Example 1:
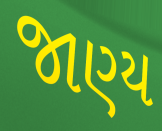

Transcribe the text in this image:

જાણ્ય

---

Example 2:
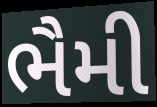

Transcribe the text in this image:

ભૈમી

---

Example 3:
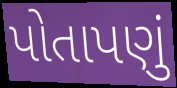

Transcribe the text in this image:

પોતાપણું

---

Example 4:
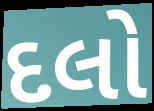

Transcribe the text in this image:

દલો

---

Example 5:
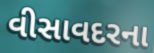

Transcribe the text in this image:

વીસાવદરના